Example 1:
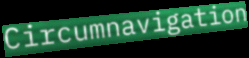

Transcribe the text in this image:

Circumnavigation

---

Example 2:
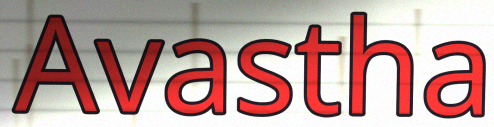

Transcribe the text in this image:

Avastha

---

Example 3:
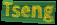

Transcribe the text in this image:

Tseng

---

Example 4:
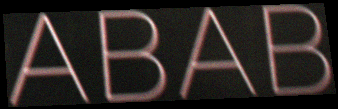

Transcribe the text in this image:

ABAB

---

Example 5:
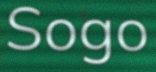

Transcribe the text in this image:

Sogo